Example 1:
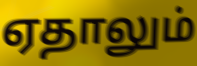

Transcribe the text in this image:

ஏதாலும்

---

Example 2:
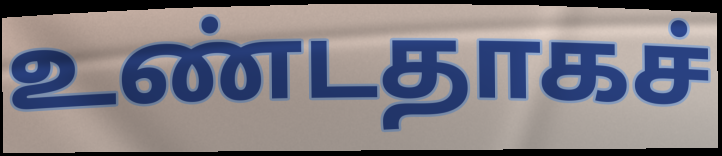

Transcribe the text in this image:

உண்டதாகச்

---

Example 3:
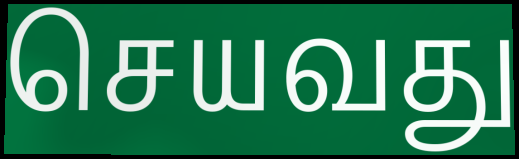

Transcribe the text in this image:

செயவது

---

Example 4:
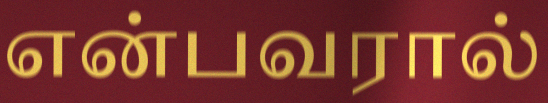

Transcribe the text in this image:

என்பவரால்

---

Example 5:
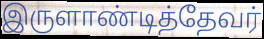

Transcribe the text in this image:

இருளாண்டித்தேவர்